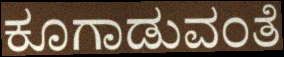
ಕೂಗಾಡುವಂತೆ